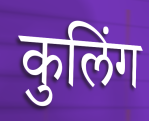
कुलिंग